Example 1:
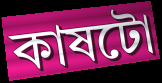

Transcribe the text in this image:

কাষটো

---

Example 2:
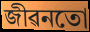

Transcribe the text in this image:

জীৱনতো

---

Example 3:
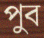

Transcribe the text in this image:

পুব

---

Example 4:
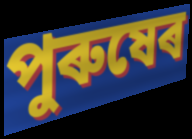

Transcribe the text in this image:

পুৰুষেৰ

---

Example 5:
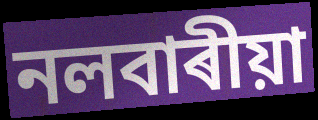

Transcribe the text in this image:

নলবাৰীয়া